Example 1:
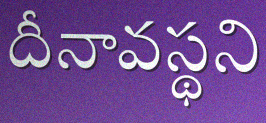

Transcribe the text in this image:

దీనావస్థని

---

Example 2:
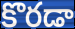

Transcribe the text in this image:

కొరడా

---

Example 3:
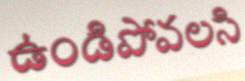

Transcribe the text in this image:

ఉండిపోవలసి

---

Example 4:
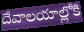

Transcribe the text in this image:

దేవాలయాల్లోకి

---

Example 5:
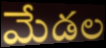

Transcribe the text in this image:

మేడల